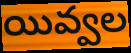
యివ్వల